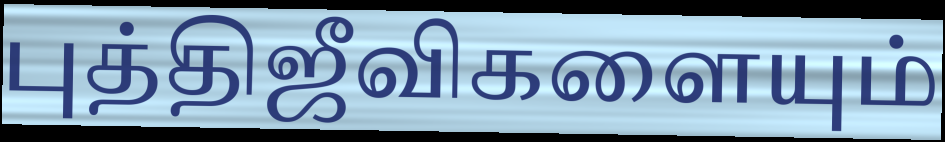
புத்திஜீவிகளையும்